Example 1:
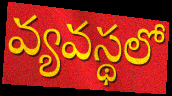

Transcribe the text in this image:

వ్యవస్థలో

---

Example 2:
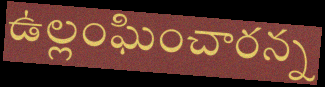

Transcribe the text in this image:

ఉల్లంఘించారన్న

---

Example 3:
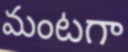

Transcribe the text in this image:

మంటగా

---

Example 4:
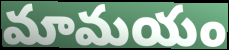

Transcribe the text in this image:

మామయం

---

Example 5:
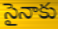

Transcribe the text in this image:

సైనాకు